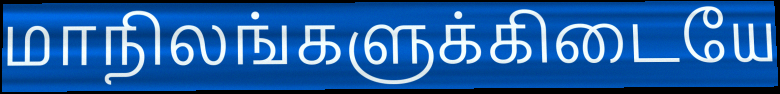
மாநிலங்களுக்கிடையே